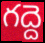
గద్దె